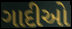
ગાદીઓ